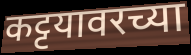
कट्टयावरच्या